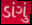
ડાંગું